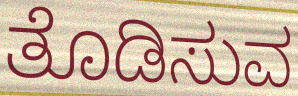
ತೊಡಿಸುವ